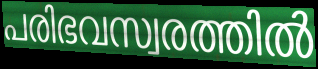
പരിഭവസ്വരത്തിൽ